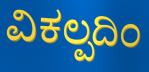
ವಿಕಲ್ಪದಿಂ